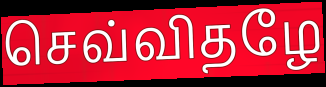
செவ்விதழே